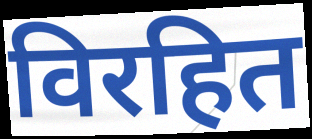
विरहित